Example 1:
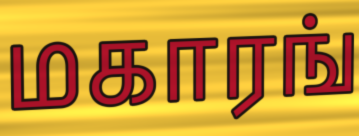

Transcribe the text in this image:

மகாரங்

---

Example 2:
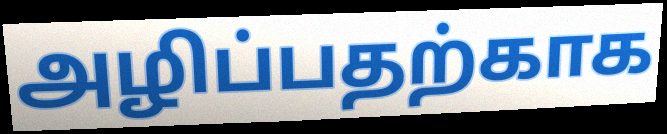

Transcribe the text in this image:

அழிப்பதற்காக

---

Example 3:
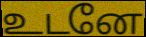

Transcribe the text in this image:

உடனே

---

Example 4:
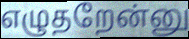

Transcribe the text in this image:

எழுதறேன்னு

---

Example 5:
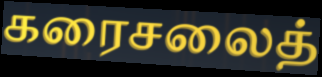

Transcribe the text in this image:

கரைசலைத்